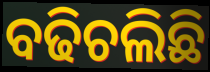
ବଢିଚଲିଛି